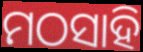
ମଠସାହି